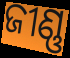
ଜୀଣ୍ଣ